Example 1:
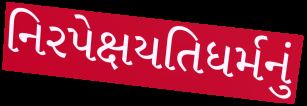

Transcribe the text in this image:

નિરપેક્ષયતિધર્મનું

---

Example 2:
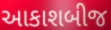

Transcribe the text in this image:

આકાશબીજ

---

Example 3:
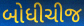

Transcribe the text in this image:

બોધીચીજ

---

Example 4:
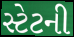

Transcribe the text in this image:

સ્ટેટની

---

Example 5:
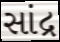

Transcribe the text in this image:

સાંદ્ર